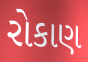
રોકાણ